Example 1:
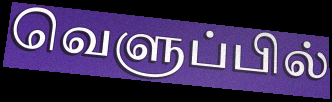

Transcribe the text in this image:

வெளுப்பில்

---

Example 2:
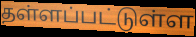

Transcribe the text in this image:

தள்ளப்பட்டுள்ள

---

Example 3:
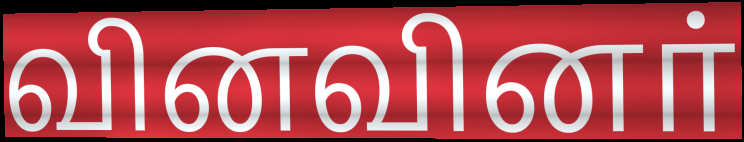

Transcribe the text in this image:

வினவினர்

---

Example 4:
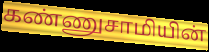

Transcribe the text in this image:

கண்ணுசாமியின்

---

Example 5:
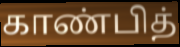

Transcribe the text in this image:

காண்பித்